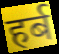
हर्ब